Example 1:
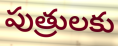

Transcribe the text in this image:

పుత్రులకు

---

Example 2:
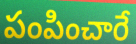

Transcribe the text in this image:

పంపించారే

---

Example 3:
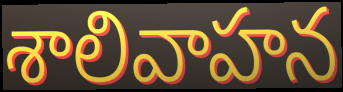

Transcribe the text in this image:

శాలివాహన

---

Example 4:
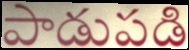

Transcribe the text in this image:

పాడుపడి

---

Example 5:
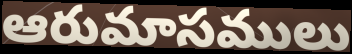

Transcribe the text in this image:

ఆరుమాసములు